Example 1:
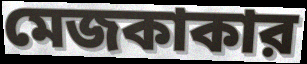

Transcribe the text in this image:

মেজকাকার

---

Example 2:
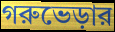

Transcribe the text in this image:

গরুভেড়ার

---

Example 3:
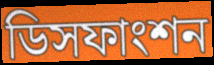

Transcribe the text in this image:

ডিসফাংশন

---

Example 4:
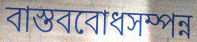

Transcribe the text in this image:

বাস্তববোধসম্পন্ন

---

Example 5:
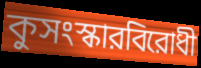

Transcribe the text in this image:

কুসংস্কারবিরোধী